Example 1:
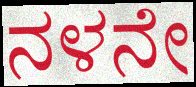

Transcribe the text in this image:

ನಳನೇ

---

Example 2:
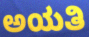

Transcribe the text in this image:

ಅಯತಿ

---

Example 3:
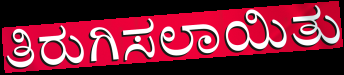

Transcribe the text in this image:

ತಿರುಗಿಸಲಾಯಿತು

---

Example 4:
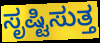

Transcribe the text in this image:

ಸೃಷ್ಟಿಸುತ್ತ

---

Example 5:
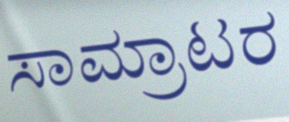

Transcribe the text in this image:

ಸಾಮ್ರಾಟರ